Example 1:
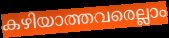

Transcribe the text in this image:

കഴിയാത്തവരെല്ലാം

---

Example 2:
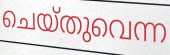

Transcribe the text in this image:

ചെയ്തുവെന്ന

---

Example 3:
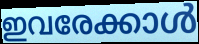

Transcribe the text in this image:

ഇവരേക്കാൾ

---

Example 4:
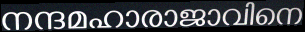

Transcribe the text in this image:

നന്ദമഹാരാജാവിനെ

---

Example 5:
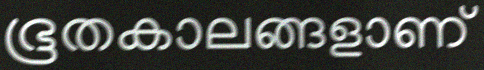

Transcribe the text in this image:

ഭൂതകാലങ്ങളാണ്